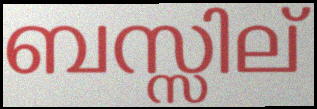
ബസ്സില്